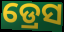
ଡ୍ରେସ